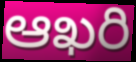
ఆఖరి